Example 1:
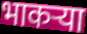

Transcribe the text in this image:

भाकर्‍या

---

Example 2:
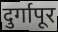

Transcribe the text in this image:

दुर्गापूर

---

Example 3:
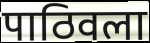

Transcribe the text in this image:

पाठिवला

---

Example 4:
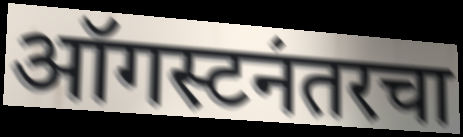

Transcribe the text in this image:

ऑगस्टनंतरचा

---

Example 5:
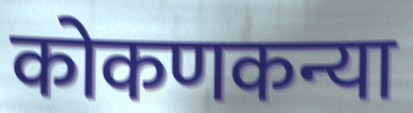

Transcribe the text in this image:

कोकणकन्या